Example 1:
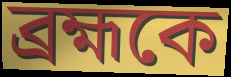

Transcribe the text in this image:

ব্রহ্মকে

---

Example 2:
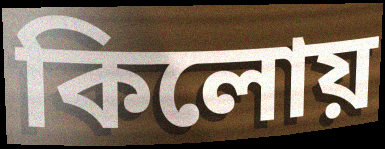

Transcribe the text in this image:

কিলোয়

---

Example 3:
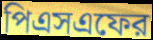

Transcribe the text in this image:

পিএসএফের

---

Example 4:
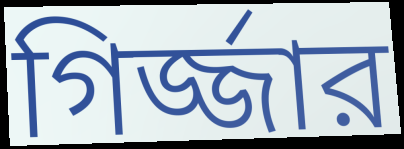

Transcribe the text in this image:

গির্জ্জার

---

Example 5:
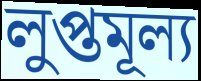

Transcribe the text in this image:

লুপ্তমূল্য